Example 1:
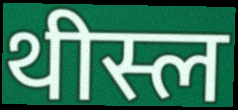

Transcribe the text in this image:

थीस्ल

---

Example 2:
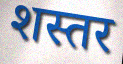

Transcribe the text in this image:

शस्तर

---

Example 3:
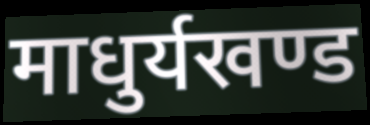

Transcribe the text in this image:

माधुर्यखण्ड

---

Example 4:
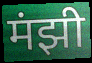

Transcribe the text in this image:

मंझी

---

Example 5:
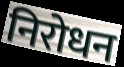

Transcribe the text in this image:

निरोधन